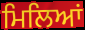
ਮਿਲਿਆਂ